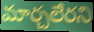
మార్చలేరని